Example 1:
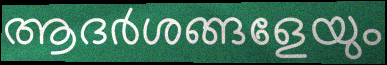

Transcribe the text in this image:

ആദർശങ്ങളേയും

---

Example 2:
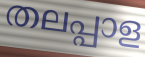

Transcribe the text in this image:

തലപ്പാള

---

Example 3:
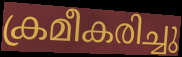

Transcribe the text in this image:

ക്രമീകരിച്ചു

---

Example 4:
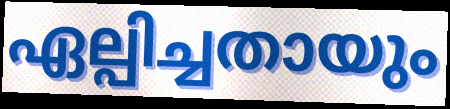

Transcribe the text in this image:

ഏല്പിച്ചതായും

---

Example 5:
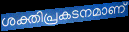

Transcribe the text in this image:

ശക്തിപ്രകടനമാണ്